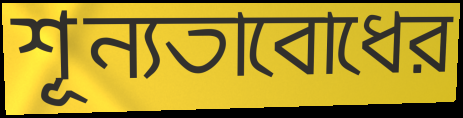
শূন্যতাবোধের